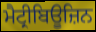
ਮੈਟ੍ਰੀਬਿਊਜ਼ਿਨ